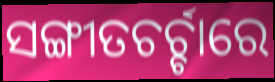
ସଙ୍ଗୀତଚର୍ଚ୍ଚାରେ